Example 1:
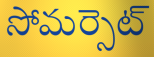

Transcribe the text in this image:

సోమర్సెట్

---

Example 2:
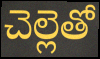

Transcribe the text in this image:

చెల్లెతో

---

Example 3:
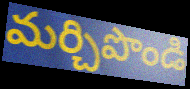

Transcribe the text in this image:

మర్చిపొండి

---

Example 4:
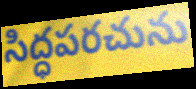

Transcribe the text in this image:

సిద్ధపరచును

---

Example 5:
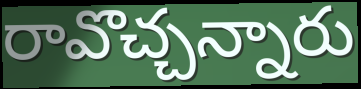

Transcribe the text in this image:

రావొచ్చన్నారు